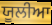
ਯੂਲੀਆ